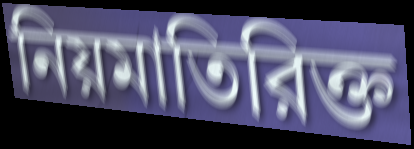
নিয়মাতিরিক্ত